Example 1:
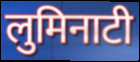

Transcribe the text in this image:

लुमिनाटी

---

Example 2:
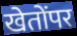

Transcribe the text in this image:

खेतोंपर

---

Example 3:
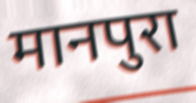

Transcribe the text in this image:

मानपुरा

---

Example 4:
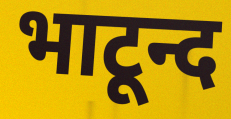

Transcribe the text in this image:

भाटून्द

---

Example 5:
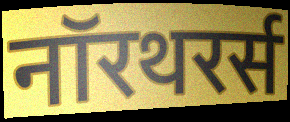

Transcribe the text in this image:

नॉरथरर्स